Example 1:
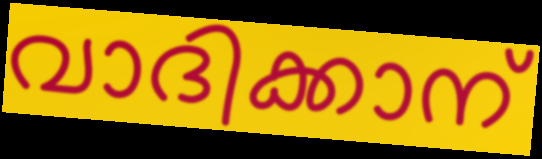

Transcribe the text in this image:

വാദിക്കാന്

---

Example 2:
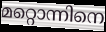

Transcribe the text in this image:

മറ്റൊന്നിനെ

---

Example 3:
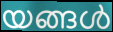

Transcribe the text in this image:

യങ്ങൾ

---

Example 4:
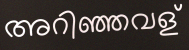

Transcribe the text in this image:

അറിഞ്ഞവള്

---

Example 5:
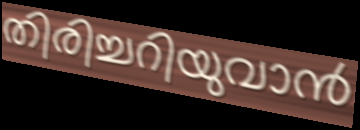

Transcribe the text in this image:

തിരിച്ചറിയുവാൻ